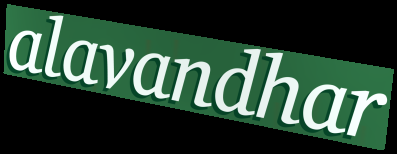
alavandhar